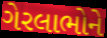
ગેરલાભોને